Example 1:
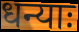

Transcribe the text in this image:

धन्याः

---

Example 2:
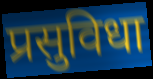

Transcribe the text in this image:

प्रसुविधा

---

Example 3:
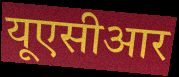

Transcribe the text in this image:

यूएसीआर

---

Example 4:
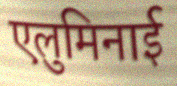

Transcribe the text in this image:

एलुमिनाई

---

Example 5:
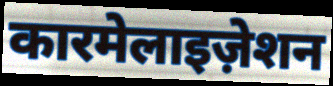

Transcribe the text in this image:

कारमेलाइज़ेशन